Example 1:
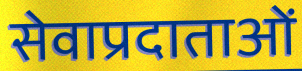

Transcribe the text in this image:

सेवाप्रदाताओं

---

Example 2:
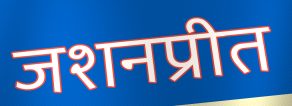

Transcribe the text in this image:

जशनप्रीत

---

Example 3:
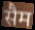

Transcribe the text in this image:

सैम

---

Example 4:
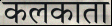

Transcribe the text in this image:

कलकाता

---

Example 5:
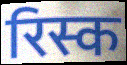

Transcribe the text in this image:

रिस्क